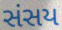
સંસય